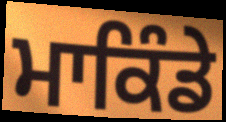
ਮਾਕਿੰਡੇ